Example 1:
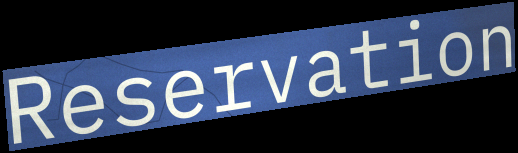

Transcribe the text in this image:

Reservation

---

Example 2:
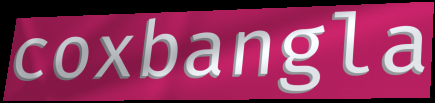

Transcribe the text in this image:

coxbangla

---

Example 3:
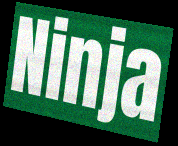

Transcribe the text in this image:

Ninja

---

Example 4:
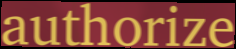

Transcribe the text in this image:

authorize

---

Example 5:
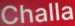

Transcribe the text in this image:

Challa